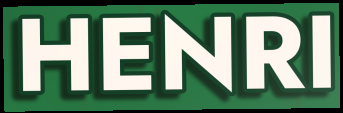
HENRI